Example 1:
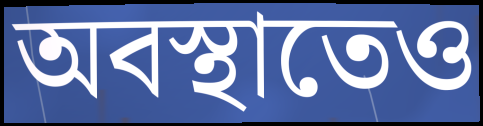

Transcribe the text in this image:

অবস্থাতেও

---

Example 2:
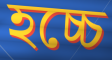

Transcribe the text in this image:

হচ্চে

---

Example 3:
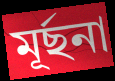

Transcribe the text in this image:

মূর্ছনা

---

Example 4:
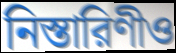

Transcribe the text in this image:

নিস্তারিণীও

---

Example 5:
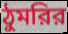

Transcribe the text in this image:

ঠুমরির